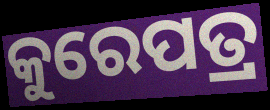
କୁରେପତ୍ର